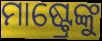
ମାଷ୍ଟ୍ରେଙ୍କୁ